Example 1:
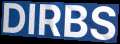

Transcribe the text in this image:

DIRBS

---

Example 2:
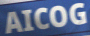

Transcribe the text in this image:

AICOG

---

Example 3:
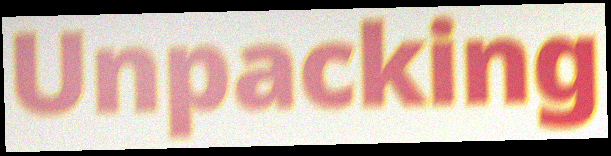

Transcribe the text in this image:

Unpacking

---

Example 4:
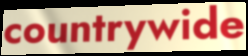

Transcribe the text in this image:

countrywide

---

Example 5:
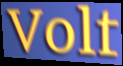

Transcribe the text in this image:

Volt